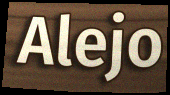
Alejo